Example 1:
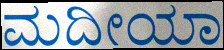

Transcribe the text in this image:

ಮದೀಯಾ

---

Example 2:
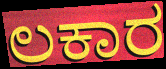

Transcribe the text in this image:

ಲಕಾರ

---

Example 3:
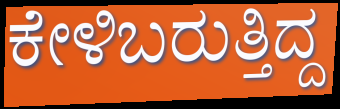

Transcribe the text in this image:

ಕೇಳಿಬರುತ್ತಿದ್ದ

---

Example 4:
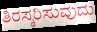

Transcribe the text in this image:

ತಿರಸ್ಕರಿಸುವುದು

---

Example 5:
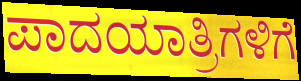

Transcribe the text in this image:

ಪಾದಯಾತ್ರಿಗಳಿಗೆ